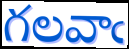
గలవాఁ